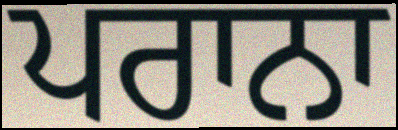
ਪਰਾਨਾ